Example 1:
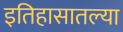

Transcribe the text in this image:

इतिहासातल्या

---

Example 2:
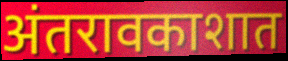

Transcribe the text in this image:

अंतरावकाशात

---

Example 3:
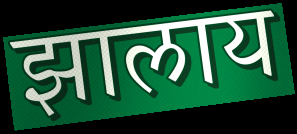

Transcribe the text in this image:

झालाय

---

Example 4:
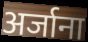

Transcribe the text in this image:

अर्जाना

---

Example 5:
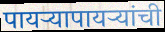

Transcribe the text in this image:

पायऱ्यापायऱ्यांची